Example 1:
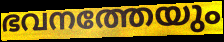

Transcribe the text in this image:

ഭവനത്തേയും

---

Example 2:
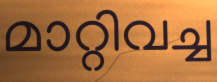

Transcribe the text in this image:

മാറ്റിവച്ച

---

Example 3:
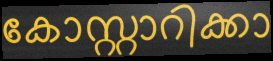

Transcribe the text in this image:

കോസ്റ്റാറിക്കാ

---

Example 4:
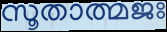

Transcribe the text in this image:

സൂതാത്മജഃ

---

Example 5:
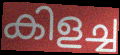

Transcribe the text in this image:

കിളച്ച